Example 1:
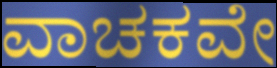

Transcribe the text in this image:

ವಾಚಕವೇ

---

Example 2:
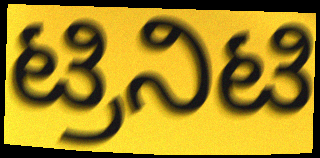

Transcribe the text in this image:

ಟ್ರಿನಿಟಿ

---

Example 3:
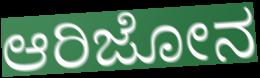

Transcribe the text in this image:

ಆರಿಜೋನ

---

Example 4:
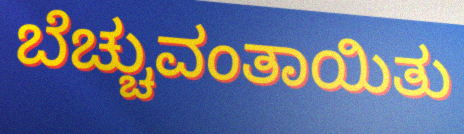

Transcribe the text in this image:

ಬೆಚ್ಚುವಂತಾಯಿತು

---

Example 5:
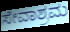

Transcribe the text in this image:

ಸೇವಾಶ್ರಮ